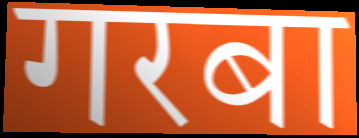
गरबा